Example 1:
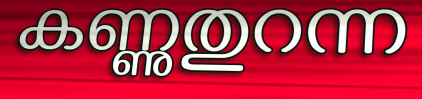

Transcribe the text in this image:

കണ്ണുതുറന്ന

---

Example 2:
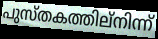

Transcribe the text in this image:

പുസ്തകത്തില്നിന്ന്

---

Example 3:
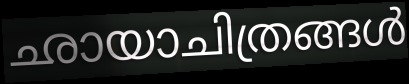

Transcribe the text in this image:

ഛായാചിത്രങ്ങൾ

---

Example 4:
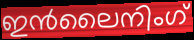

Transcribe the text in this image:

ഇൻലൈനിംഗ്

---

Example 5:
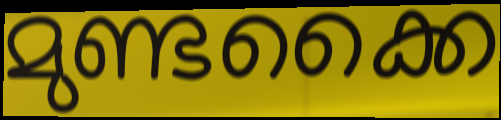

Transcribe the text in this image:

മുണ്ടക്കൈ